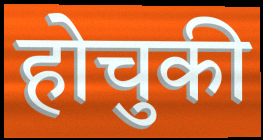
होचुकी